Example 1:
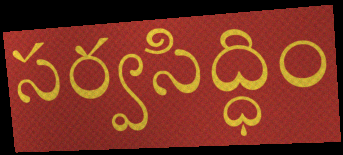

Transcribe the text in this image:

సర్వసిద్ధిం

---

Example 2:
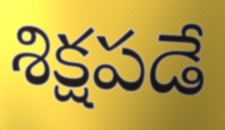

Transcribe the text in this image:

శిక్షపడే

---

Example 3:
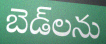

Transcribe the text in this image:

బెడ్‌లను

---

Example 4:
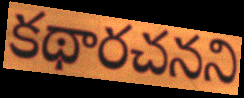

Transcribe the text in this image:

కథారచనని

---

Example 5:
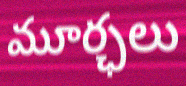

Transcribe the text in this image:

మూర్ఛలు